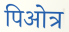
पिओत्र